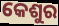
କେଶୁର